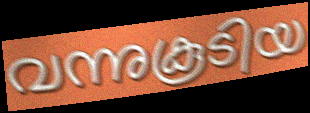
വന്നുകൂടിയ